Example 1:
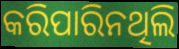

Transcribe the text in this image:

କରିପାରିନଥିଲି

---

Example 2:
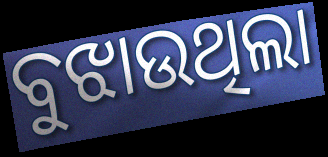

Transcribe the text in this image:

ବୁଝାଉଥିଲା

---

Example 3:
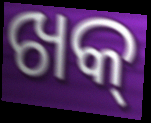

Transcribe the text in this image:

ଖକ୍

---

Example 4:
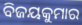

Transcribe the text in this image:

ବିଜୟକୁମାର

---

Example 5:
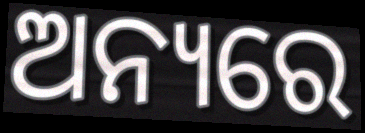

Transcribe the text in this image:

ଅନ୍ୟରେ